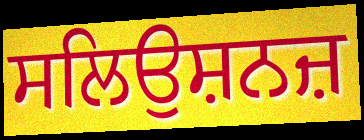
ਸਲਿਉਸ਼ਨਜ਼